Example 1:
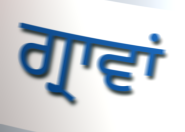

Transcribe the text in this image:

ਗ੍ਰਾਵਾਂ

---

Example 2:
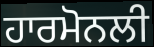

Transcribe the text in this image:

ਹਾਰਮੋਨਲੀ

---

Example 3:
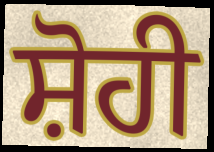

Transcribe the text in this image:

ਸ਼ੋਹੀ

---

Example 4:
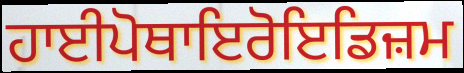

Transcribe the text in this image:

ਹਾਈਪੋਥਾਇਰੋਇਡਿਜ਼ਮ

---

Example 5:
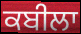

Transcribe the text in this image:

ਕਬੀਲਾ